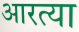
आरत्या